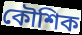
কৌশিক